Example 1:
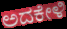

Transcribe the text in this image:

ಅದಕೇಳಿ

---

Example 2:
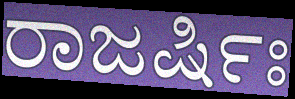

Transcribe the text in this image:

ರಾಜರ್ಷಿಃ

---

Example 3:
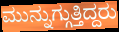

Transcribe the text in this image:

ಮುನ್ನುಗ್ಗುತ್ತಿದ್ದರು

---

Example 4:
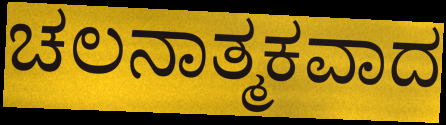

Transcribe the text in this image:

ಚಲನಾತ್ಮಕವಾದ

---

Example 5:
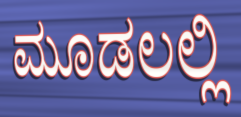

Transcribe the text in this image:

ಮೂಡಲಲ್ಲಿ